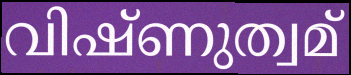
വിഷ്ണുത്വമ്